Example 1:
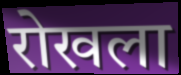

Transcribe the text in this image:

रोखला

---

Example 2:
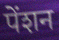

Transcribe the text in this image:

पेंशन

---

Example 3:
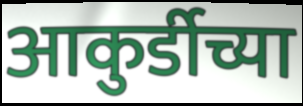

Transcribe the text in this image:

आकुर्डीच्या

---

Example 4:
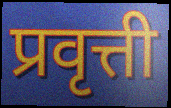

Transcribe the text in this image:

प्रवृत्ती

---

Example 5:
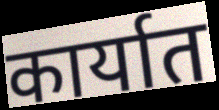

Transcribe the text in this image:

कार्यात